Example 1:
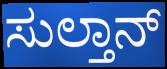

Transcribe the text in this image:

ಸುಲ್ತಾನ್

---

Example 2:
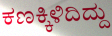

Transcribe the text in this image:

ಕಣಕ್ಕಿಳಿದಿದ್ದು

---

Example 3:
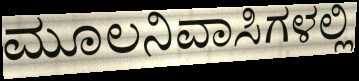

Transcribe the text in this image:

ಮೂಲನಿವಾಸಿಗಳಲ್ಲಿ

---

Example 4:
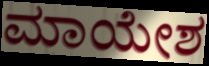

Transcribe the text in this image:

ಮಾಯೇಶ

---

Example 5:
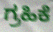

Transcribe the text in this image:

ಗ್ರಹಿಕೆ